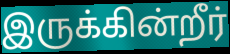
இருக்கின்றீர்